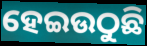
ହେଇଉଠୁଛି